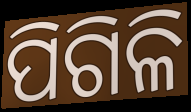
ପିଗିଳି